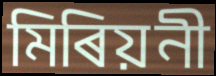
মিৰিয়নী